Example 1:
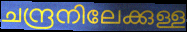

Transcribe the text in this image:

ചന്ദ്രനിലേക്കുള്ള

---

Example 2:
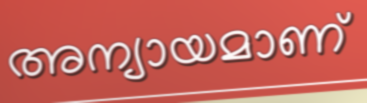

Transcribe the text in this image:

അന്യായമാണ്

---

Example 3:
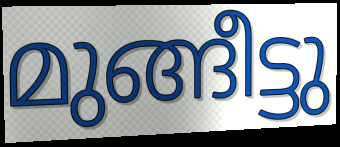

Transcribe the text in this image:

മുങ്ങീട്ടു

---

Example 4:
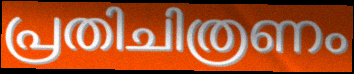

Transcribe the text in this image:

പ്രതിചിത്രണം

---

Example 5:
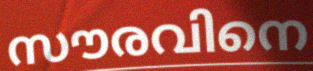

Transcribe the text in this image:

സൗരവിനെ